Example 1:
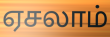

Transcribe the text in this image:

ஏசலாம்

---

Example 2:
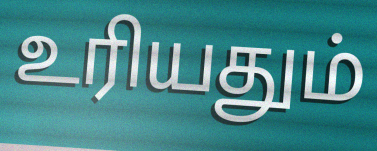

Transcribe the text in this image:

உரியதும்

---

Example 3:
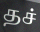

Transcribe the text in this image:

தச்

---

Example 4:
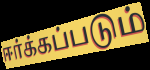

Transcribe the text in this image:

ஈர்க்கப்படும்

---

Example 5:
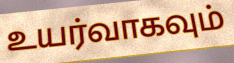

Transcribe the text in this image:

உயர்வாகவும்